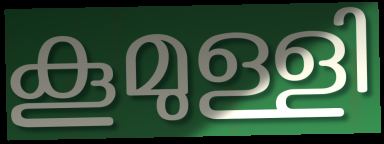
കൂമുള്ളി